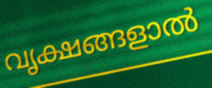
വൃക്ഷങ്ങളാൽ